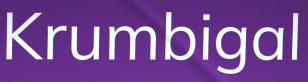
Krumbigal